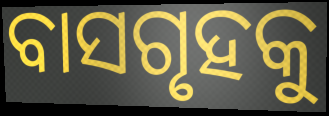
ବାସଗୃହକୁ